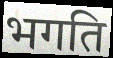
भगति